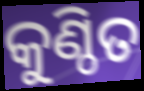
କୁଣ୍ଠିତ